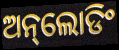
ଅନ୍‌ଲୋଡିଂ